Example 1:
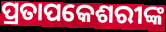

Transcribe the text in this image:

ପ୍ରତାପକେଶରୀଙ୍କ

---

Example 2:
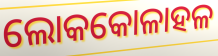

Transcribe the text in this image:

ଲୋକକୋଳାହଳ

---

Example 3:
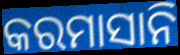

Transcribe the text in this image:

କରମାସାନି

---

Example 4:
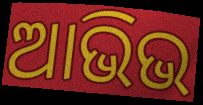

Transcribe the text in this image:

ଆଭିଭ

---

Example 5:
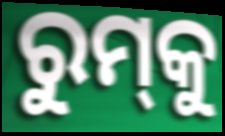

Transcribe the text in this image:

ରୁମ୍‍କୁ